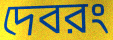
দেবরং